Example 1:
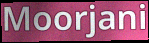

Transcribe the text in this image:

Moorjani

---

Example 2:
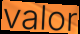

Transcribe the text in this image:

valor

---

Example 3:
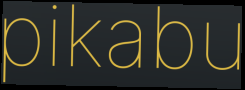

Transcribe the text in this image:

pikabu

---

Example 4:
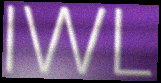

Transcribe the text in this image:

IWL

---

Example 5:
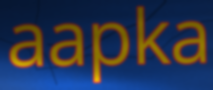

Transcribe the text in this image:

aapka